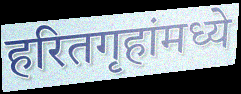
हरितगृहांमध्ये